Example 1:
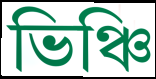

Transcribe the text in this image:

ভিঞ্চি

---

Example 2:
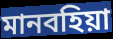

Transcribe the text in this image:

মানবহিয়া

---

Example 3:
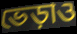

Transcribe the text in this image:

ভেড়াও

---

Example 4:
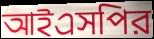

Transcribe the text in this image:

আইএসপির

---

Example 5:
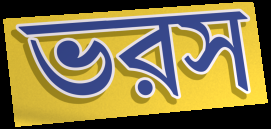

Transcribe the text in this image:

ভরস